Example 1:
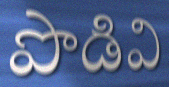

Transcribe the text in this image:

పొడివి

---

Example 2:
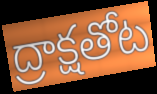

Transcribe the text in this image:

ద్రాక్షతోట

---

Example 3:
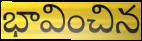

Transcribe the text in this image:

భావించిన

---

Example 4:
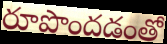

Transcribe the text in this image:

రూపొందడంతో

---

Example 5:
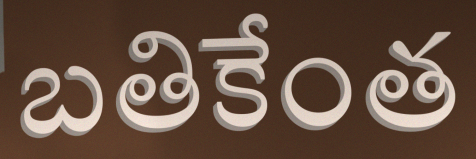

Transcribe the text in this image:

బతికేంత